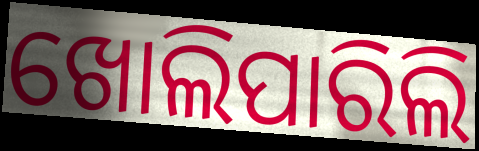
ଖୋଲିପାରିଲି